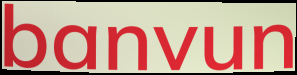
banvun